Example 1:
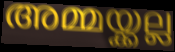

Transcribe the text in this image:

അമ്മയ്ക്കല്ല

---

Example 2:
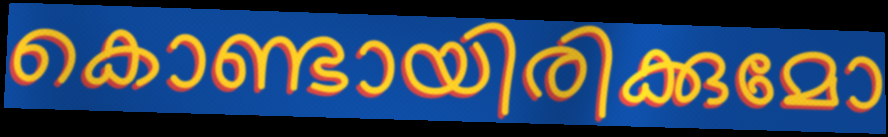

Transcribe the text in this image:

കൊണ്ടായിരിക്കുമോ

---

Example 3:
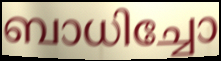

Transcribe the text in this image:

ബാധിച്ചോ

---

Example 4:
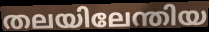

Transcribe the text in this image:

തലയിലേന്തിയ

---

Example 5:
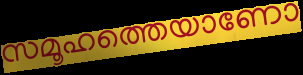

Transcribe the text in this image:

സമൂഹത്തെയാണോ